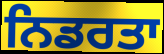
ਨਿਡਰਤਾ